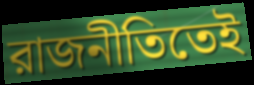
রাজনীতিতেই